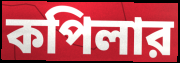
কপিলার